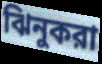
ঝিনুকরা